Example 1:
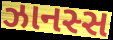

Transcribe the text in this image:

ઝાનસ્સ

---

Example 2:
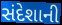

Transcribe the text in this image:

સંદેશાની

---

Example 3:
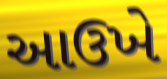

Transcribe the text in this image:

આઉખે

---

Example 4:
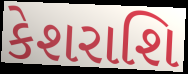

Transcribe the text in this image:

કેશરાશિ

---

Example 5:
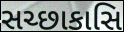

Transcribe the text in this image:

સચ્છાકાસિ